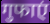
गुफाएं